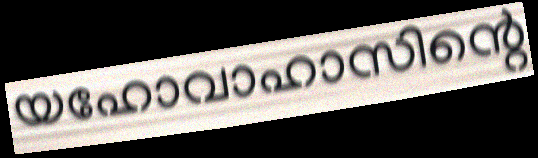
യഹോവാഹാസിന്റെ